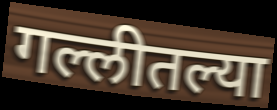
गल्लीतल्या